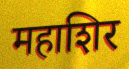
महाशिर